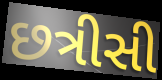
છત્રીસી